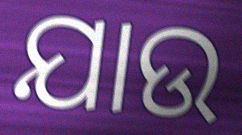
ଯାଉ